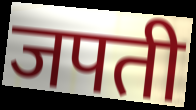
जपती